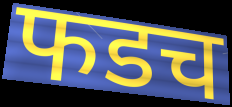
फडच